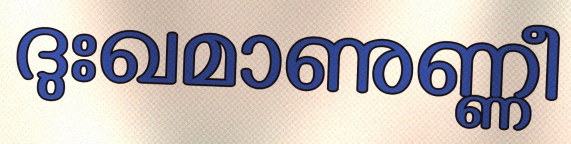
ദുഃഖമാണുണ്ണീ